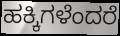
ಹಕ್ಕಿಗಳೆಂದರೆ